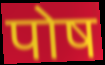
पोष